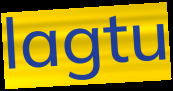
lagtu